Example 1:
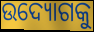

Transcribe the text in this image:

ଉଦ୍ୟୋଗକୁ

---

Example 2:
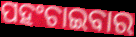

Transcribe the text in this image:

ପହଂଚାଇବାର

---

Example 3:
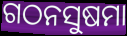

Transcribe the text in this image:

ଗଠନସୁଷମା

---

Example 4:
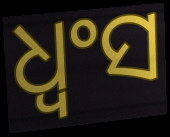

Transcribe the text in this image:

ଧ୍ଵଂସ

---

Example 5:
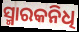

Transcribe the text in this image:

ସ୍ମାରକନିଧି